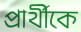
প্রার্থীকে